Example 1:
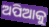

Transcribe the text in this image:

ଅପିଆକୁ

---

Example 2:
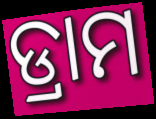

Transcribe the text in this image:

ଡ୍ରାମ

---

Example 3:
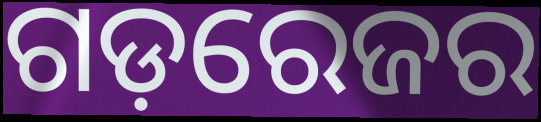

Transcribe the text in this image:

ଗଡ଼ରେଜର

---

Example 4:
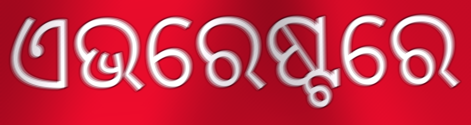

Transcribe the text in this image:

ଏଭରେଷ୍ଟରେ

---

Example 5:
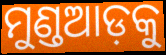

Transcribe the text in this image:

ମୁଣ୍ଡଆଡ଼କୁ